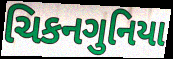
ચિકનગુનિયા